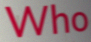
Who